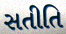
સતીતિ